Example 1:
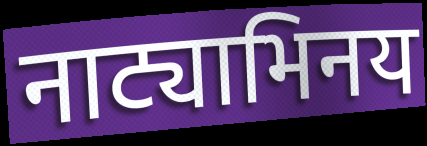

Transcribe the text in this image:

नाट्याभिनय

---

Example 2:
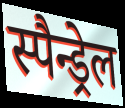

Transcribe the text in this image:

स्पैन्ड्रेल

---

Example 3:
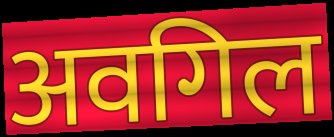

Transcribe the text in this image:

अवगिल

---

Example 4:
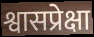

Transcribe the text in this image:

श्वासप्रेक्षा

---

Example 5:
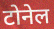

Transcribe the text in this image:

टोनेल